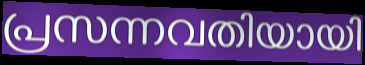
പ്രസന്നവതിയായി